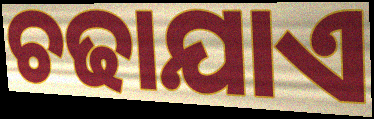
ଚଢାଯାଏ